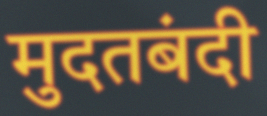
मुदतबंदी